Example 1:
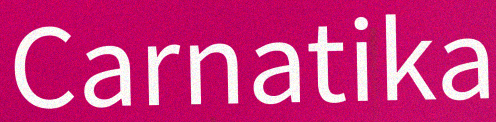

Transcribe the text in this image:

Carnatika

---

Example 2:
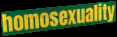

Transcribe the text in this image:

homosexuality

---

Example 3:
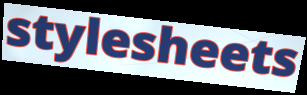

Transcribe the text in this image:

stylesheets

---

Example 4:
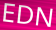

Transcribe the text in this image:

EDN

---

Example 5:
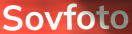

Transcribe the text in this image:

Sovfoto